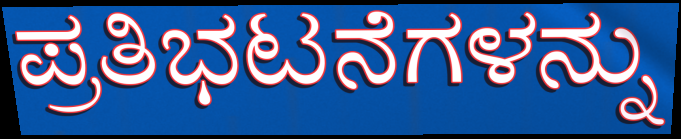
ಪ್ರತಿಭಟನೆಗಳನ್ನು